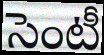
సెంటీ